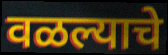
वळल्याचे